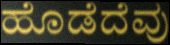
ಹೊಡೆದೆವು